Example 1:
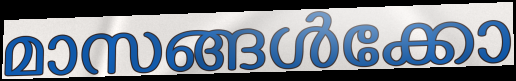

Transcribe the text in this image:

മാസങ്ങൾക്കോ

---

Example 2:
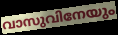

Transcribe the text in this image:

വാസുവിനേയും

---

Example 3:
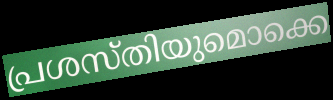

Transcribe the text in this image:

പ്രശസ്തിയുമൊക്കെ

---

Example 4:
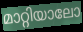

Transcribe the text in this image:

മാറ്റിയാലോ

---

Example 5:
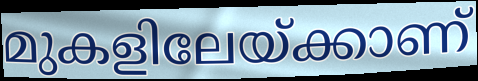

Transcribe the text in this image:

മുകളിലേയ്ക്കാണ്